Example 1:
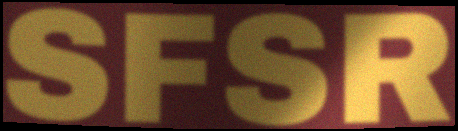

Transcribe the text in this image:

SFSR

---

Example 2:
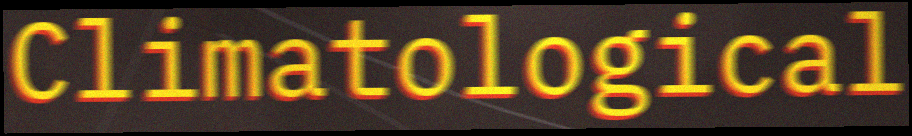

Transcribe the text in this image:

Climatological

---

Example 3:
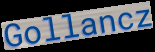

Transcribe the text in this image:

Gollancz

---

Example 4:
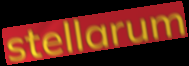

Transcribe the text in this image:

stellarum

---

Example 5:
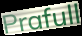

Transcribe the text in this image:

Prafull